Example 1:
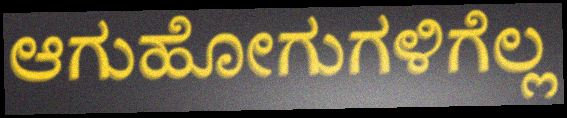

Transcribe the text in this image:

ಆಗುಹೋಗುಗಳಿಗೆಲ್ಲ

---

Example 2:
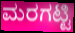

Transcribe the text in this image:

ಮರಗಟ್ಟಿ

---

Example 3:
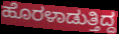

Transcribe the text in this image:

ಹೊರಳಾಡುತ್ತಿದ್ದ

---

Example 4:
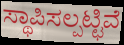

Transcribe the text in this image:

ಸ್ಥಾಪಿಸಲ್ಪಟ್ಟಿವೆ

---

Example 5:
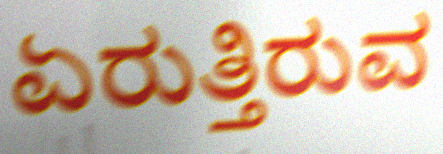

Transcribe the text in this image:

ಏರುತ್ತಿರುವ